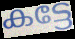
കട്ടേ